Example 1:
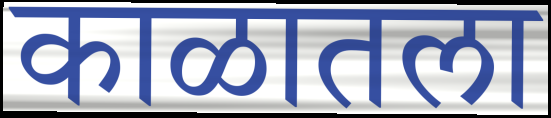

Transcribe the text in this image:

काळातला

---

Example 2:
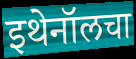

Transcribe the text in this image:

इथेनॉलचा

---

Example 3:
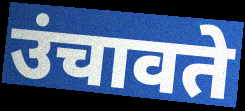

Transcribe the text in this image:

उंचावते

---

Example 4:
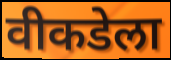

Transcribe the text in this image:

वीकडेला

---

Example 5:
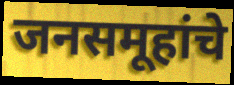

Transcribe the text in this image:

जनसमूहांचे